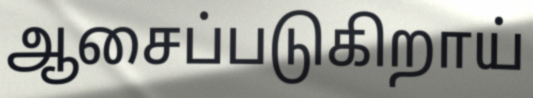
ஆசைப்படுகிறாய்